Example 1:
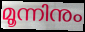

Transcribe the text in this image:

മൂന്നിനും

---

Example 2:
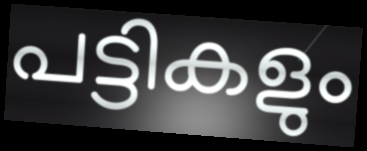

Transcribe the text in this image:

പട്ടികളും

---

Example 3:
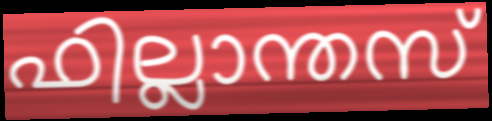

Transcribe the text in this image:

ഫില്ലാന്തസ്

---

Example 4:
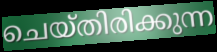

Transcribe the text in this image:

ചെയ്തിരിക്കുന്ന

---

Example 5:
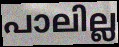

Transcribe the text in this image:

പാലില്ല